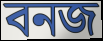
বনজ